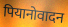
पियानोवादन